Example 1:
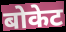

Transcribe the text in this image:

बोकेट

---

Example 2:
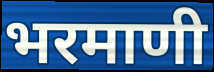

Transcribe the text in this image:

भरमाणी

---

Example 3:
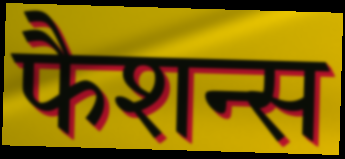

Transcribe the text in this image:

फैशन्स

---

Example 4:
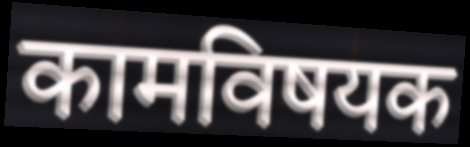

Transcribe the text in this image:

कामविषयक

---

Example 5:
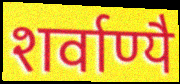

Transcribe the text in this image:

शर्वाण्यै